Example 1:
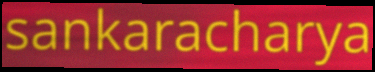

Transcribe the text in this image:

sankaracharya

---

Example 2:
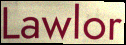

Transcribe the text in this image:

Lawlor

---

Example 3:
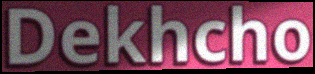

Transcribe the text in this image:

Dekhcho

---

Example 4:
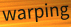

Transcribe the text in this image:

warping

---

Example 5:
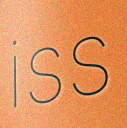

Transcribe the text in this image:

iss